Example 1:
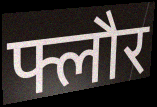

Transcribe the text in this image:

फ्लौर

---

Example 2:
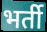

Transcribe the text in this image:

भर्ती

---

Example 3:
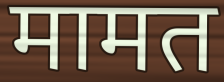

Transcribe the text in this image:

मामत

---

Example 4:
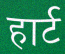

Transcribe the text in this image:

हार्ट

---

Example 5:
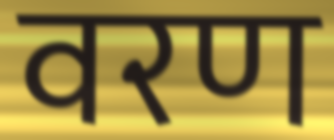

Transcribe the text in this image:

वरण